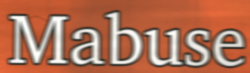
Mabuse